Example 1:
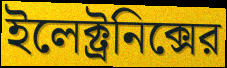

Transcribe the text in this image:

ইলেক্ট্রনিক্সের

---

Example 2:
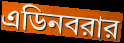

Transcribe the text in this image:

এডিনবরার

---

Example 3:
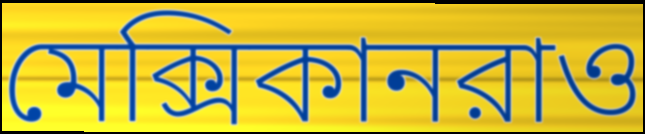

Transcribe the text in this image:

মেক্সিকানরাও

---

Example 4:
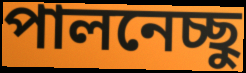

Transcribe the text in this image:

পালনেচ্ছু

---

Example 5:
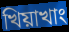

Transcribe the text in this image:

খিয়াখাং